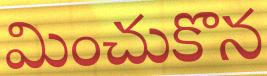
మించుకొన